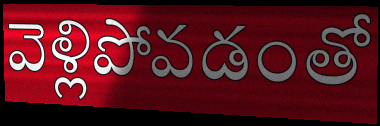
వెళ్లిపోవడంతో